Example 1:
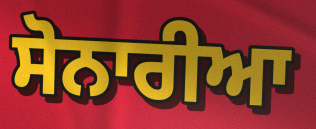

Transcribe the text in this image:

ਸੋਨਾਰੀਆ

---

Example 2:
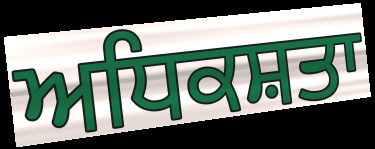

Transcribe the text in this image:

ਅਧਿਕਸ਼ਤਾ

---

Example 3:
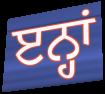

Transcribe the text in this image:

ੲਨ੍ਹਾਂ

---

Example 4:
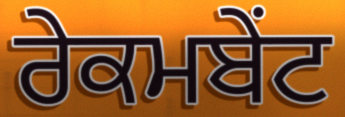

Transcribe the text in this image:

ਰੇਕਮਬੇਂਟ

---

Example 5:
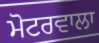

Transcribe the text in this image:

ਮੋਟਰਵਾਲਾ